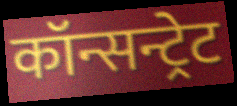
कॉन्सन्ट्रेट